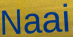
Naai